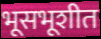
भूसभूशीत